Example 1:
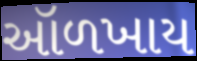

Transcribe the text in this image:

ઑળખાય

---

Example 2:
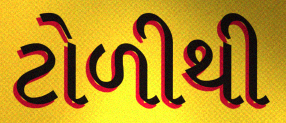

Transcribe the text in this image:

ટોળીથી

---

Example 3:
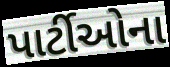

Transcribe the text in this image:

પાર્ટીઓના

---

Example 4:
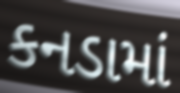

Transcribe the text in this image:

કનડામાં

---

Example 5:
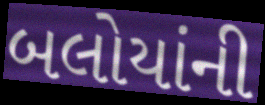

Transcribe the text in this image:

બલોયાંની